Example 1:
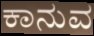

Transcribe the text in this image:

ಕಾನುವ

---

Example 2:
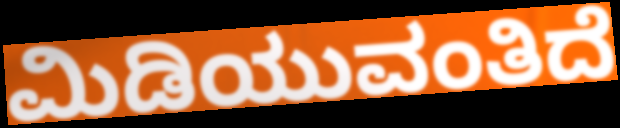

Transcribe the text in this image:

ಮಿಡಿಯುವಂತಿದೆ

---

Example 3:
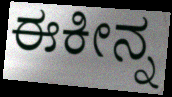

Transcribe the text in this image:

ಈಕೀನ್ನ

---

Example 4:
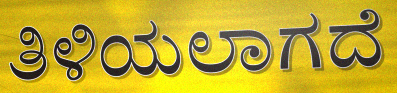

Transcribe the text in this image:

ತಿಳಿಯಲಾಗದೆ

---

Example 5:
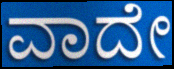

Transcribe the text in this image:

ವಾದೇ